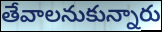
తేవాలనుకున్నారు